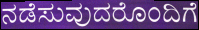
ನಡೆಸುವುದರೊಂದಿಗೆ